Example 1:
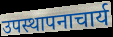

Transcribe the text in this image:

उपस्थापनाचार्य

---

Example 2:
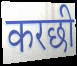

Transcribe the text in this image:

करछी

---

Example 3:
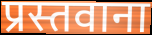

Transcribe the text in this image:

प्रस्तवाना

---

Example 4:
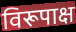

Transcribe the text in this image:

विरूपाक्ष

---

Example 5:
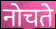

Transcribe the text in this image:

नोचते